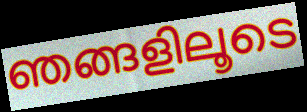
ഞങ്ങളിലൂടെ